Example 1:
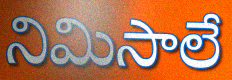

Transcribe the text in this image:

నిమిసాలే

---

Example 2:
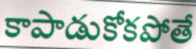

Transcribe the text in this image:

కాపాడుకోకపోతే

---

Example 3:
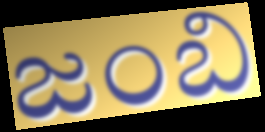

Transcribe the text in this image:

జంబి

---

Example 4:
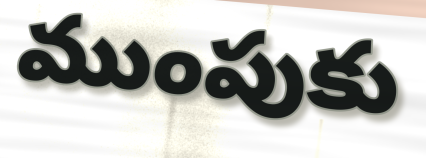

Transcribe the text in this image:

ముంపుకు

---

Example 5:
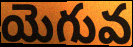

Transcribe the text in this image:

యెగువ